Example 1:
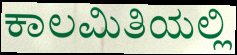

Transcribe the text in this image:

ಕಾಲಮಿತಿಯಲ್ಲಿ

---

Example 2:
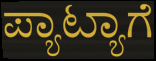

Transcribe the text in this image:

ಪ್ಯಾಟ್ಯಾಗೆ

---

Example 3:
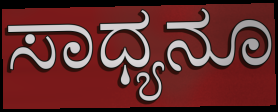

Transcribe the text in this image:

ಸಾಧ್ಯನೂ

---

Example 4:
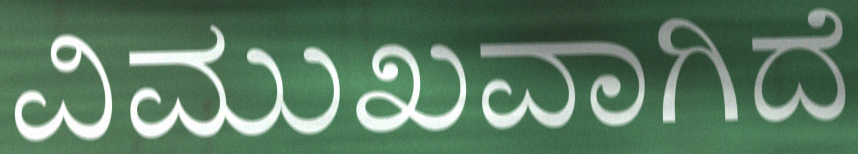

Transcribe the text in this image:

ವಿಮುಖವಾಗಿದೆ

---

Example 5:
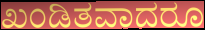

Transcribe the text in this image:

ಖಂಡಿತವಾದರೂ